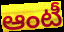
ఆంటీ